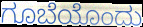
ಗೂಬೆಯೊಂದು